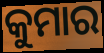
କୁମାର